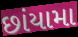
છાંયામા